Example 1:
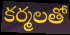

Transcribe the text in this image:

కర్మలతో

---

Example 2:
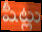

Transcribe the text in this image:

షీట్లు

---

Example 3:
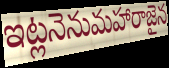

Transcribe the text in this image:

ఇట్లనెనుమహారాజైన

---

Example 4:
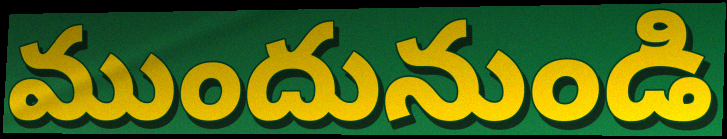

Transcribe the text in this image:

ముందునుండి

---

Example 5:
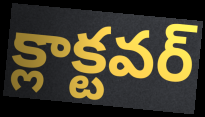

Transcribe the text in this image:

క్లాక్టవర్